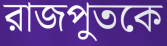
রাজপুতকে